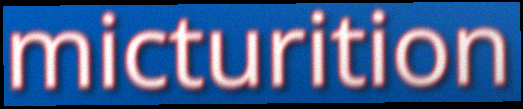
micturition